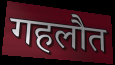
गहलौत